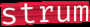
strum